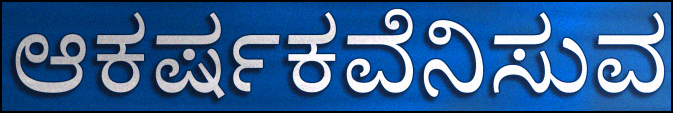
ಆಕರ್ಷಕವೆನಿಸುವ